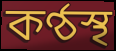
কণ্ঠস্থ